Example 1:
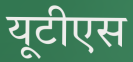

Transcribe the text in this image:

यूटीएस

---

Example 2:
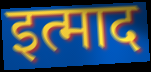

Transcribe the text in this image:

इत्माद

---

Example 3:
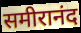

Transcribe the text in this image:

समीरानंद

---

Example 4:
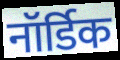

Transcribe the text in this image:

नॉर्डिक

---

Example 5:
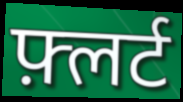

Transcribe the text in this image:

फ़्लर्ट